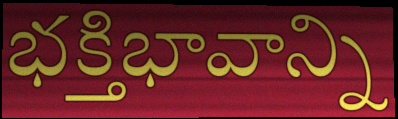
భక్తిభావాన్ని